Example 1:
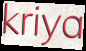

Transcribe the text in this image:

kriya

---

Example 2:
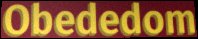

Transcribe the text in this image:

Obededom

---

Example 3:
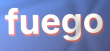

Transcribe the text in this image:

fuego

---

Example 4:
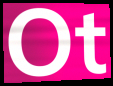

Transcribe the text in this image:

Ot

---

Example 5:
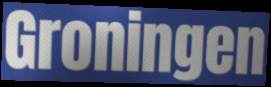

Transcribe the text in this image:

Groningen